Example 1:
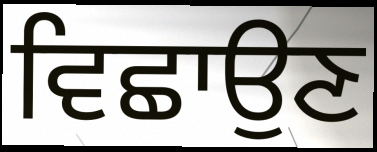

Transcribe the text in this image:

ਵਿਛਾਉਣ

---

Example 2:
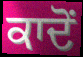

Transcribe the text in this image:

ਕਾਦੋਂ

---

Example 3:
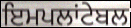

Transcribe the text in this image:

ਇਮਪਲਾਂਟੇਬਲ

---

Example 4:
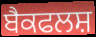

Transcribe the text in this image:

ਬੈਕਫਲਸ਼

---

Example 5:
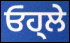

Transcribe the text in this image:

ਓਹ੍ਲੇ